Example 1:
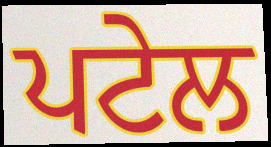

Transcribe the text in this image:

ਪਟੇਲ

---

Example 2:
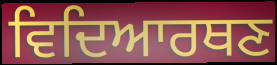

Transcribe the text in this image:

ਵਿਦਿਆਰਥਣ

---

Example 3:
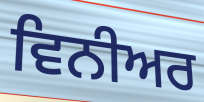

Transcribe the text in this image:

ਵਿਨੀਅਰ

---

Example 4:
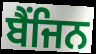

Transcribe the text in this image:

ਬੈਂਜਿਨ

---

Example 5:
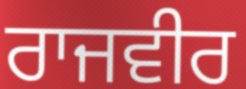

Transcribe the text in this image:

ਰਾਜਵੀਰ